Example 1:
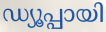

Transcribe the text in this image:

ഡ്യൂപ്പായി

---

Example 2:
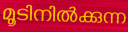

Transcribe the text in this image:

മൂടിനിൽക്കുന്ന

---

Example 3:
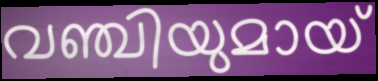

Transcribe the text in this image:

വഞ്ചിയുമായ്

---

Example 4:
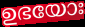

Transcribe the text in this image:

ഉഭയോഃ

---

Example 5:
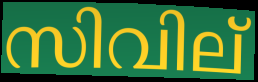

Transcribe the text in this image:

സിവില്